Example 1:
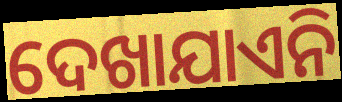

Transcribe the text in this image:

ଦେଖାଯାଏନି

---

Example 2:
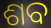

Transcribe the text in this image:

ଶବ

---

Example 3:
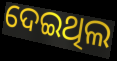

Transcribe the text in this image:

ଦେଇଥିଲ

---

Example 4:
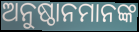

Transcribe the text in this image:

ଅନୁଷ୍ଠାନମାନଙ୍କ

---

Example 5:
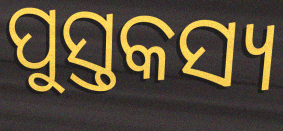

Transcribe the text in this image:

ପୁସ୍ତକସ୍ୟ